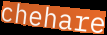
chehare